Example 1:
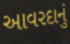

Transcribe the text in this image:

આવરદાનું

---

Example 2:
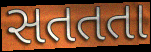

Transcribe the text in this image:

સતતતા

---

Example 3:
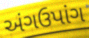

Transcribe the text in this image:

અંગઉપાંગ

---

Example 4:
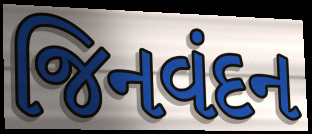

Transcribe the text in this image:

જિનવંદન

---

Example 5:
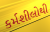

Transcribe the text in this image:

કર્મશીલોથી